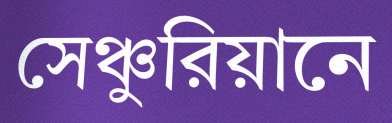
সেঞ্চুরিয়ানে